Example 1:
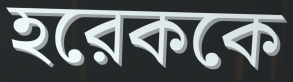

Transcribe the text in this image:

হরেককে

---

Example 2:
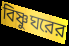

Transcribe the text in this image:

বিষ্ণুঘরের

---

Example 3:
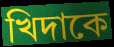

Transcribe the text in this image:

খিদাকে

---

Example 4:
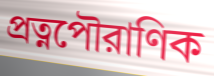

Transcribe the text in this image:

প্রত্নপৌরাণিক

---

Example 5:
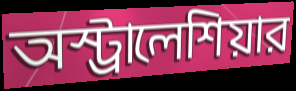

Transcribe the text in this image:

অস্ট্রালেশিয়ার